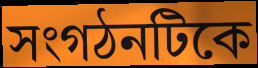
সংগঠনটিকে